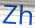
Zh